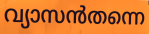
വ്യാസൻതന്നെ